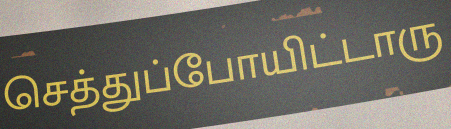
செத்துப்போயிட்டாரு